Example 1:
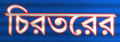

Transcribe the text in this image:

চিরতরের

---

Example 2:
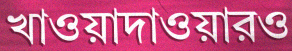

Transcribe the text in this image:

খাওয়াদাওয়ারও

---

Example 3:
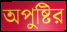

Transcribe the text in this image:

অপুষ্টির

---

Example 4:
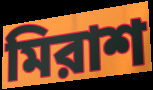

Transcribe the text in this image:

মিরাশ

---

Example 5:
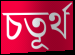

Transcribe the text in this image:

চতূর্থ